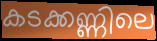
കടക്കണ്ണിലെ